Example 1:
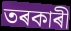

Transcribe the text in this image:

তৰকাৰী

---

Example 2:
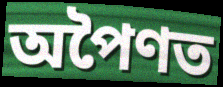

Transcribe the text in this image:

অপৈণত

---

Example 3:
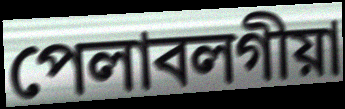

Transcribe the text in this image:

পেলাবলগীয়া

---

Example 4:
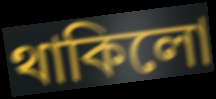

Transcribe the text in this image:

থাকিলো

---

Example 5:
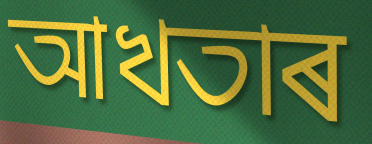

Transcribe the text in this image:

আখতাৰ